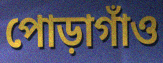
পোড়াগাঁও